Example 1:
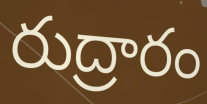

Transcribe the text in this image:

రుద్రారం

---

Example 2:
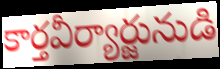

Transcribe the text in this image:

కార్తవీర్యార్జునుడి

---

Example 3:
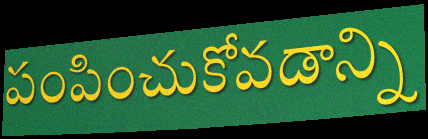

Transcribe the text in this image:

పంపించుకోవడాన్ని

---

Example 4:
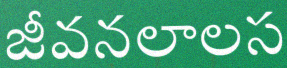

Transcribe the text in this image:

జీవనలాలస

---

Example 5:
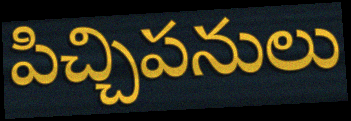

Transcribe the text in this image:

పిచ్చిపనులు